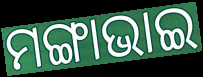
ମଙ୍ଗାଭାଇ